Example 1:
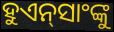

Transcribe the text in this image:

ହୁଏନ୍‌ସାଂଙ୍କୁ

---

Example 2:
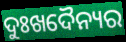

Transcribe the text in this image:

ଦୁଃଖଦୈନ୍ୟର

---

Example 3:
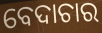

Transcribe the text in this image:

ବେଦାଚାର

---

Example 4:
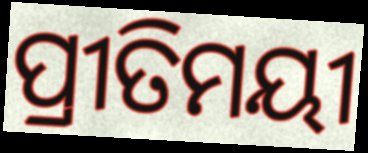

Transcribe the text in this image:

ପ୍ରୀତିମୟୀ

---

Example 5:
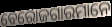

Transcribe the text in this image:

ବେରୋଜଗାରମାନେ